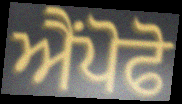
ਐਂਪੋਫੋ